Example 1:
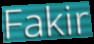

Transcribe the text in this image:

Fakir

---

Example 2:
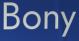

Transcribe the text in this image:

Bony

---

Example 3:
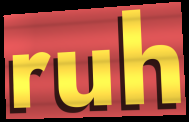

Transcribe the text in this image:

ruh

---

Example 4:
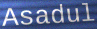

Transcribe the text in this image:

Asadul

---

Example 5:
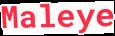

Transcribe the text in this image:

Maleye